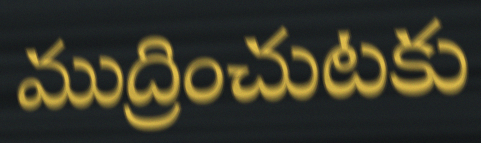
ముద్రించుటకు